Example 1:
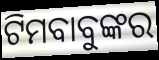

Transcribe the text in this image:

ଟିମବାବୁଙ୍କର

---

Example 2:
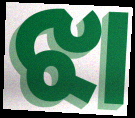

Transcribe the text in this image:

ଝା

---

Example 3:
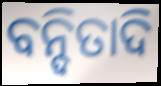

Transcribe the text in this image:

ବନ୍ଦିତାଦି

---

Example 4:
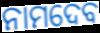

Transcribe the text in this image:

ନାମଦେବ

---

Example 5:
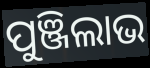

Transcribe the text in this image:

ପୁଞ୍ଜିଲାଭ